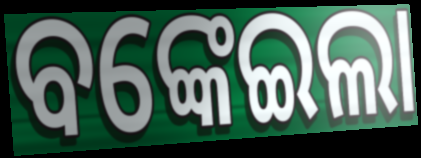
ବଙ୍କେଇଲା